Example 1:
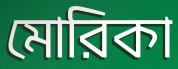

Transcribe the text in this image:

মোরিকা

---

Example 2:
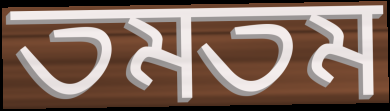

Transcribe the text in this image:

তমতম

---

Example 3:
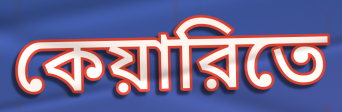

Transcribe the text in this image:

কেয়ারিতে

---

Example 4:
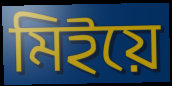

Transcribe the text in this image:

মিইয়ে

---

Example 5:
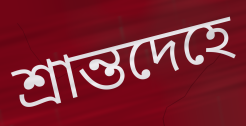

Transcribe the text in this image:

শ্রান্তদেহে